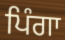
ਪਿੰਗਾ